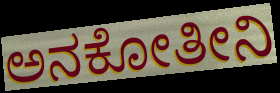
ಅನಕೋತೀನಿ